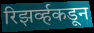
रिझर्व्हकडून